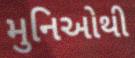
મુનિઓથી